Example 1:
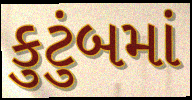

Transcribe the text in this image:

કુટુંબમાં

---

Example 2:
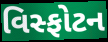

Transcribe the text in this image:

વિસ્ફોટન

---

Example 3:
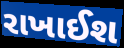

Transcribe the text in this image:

રાખાઈશ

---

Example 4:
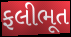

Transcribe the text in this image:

ફલીભૂત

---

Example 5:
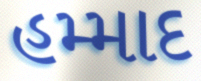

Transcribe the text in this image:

હમ્માદ